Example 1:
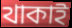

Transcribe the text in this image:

থাকাই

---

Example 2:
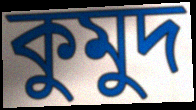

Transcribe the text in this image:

কুমুদ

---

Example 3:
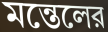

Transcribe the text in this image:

মন্তেলের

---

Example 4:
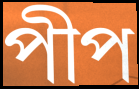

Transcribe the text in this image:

পীপ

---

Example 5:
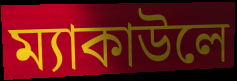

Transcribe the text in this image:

ম্যাকাউলে